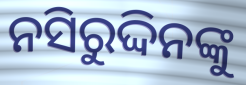
ନସିରୁଦ୍ଦିନଙ୍କୁ